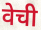
वेची